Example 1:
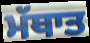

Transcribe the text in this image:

ਮੱਥਾਤ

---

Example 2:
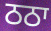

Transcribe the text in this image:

ਠਠਾ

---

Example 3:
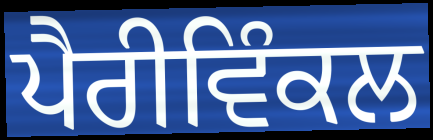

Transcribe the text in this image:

ਪੈਰੀਵਿੰਕਲ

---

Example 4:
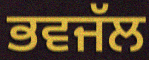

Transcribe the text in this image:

ਭਵਜੱਲ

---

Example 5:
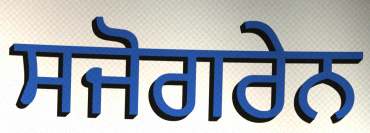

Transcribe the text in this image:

ਸਜੋਗਰੇਨ